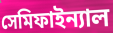
সেমিফাইন্যাল